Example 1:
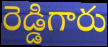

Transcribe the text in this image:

రెడ్డిగారు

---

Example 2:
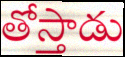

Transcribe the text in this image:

తోస్తాడు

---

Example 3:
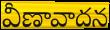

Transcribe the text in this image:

వీణావాదన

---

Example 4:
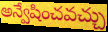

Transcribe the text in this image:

అన్వేషించవచ్చు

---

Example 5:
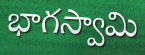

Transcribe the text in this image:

భాగస్వామి